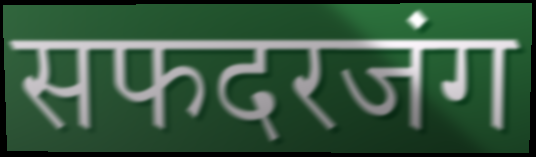
सफदरजंग